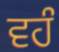
ਵਹੰ